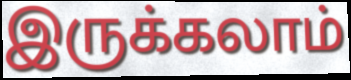
இருக்கலாம்